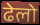
ढेलो